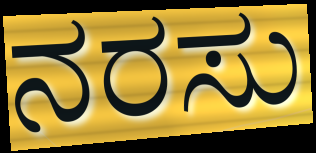
ನರಸು